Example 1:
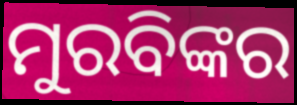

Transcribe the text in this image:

ମୁରବିଙ୍କର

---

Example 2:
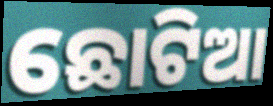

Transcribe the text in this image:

ଛୋଟିଆ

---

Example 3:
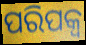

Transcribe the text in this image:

ପରିପକ୍ବ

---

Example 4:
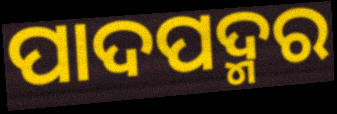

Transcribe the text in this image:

ପାଦପଦ୍ମର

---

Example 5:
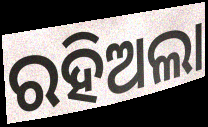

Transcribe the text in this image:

ରହିଅଲା